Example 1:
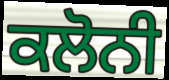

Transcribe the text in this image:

ਕਲੋਨੀ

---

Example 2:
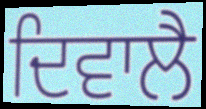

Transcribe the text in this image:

ਦਿਵਾਲੈ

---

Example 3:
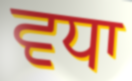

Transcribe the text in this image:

ਵਧਾ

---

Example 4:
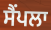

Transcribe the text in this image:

ਸੈਂਪਲਾ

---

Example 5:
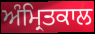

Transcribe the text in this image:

ਅੰਮ੍ਰਿਤਕਾਲ